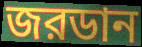
জরডান